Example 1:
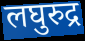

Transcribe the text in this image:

लघुरुद्र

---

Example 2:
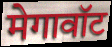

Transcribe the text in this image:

मेगावॉट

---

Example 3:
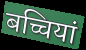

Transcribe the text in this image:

बच्चियां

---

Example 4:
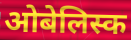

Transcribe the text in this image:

ओबेलिस्क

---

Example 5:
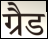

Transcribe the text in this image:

ग्रैड